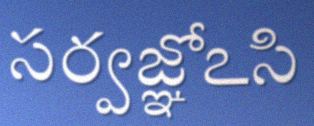
సర్వజ్ఞోఽసి